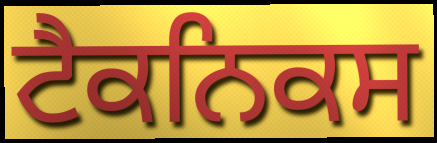
ਟੈਕਨਿਕਸ